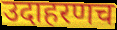
उदाहरणच